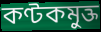
কণ্টকমুক্ত